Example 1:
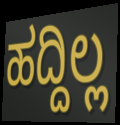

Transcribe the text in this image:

ಹದ್ದಿಲ್ಲ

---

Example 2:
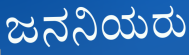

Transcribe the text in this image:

ಜನನಿಯರು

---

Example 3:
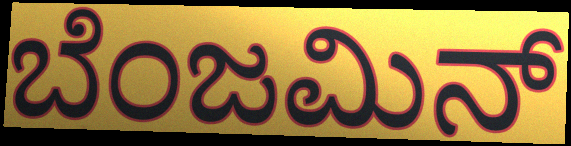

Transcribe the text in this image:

ಬೆಂಜಮಿನ್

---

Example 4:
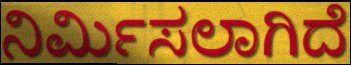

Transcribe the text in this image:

ನಿರ್ಮಿಸಲಾಗಿದೆ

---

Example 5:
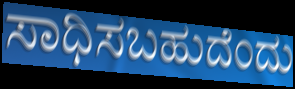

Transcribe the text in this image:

ಸಾಧಿಸಬಹುದೆಂದು